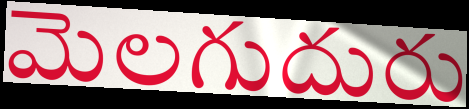
మెలగుదురు